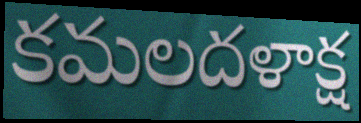
కమలదళాక్ష